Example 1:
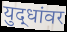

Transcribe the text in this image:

युद्धांवर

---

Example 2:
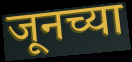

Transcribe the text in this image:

जूनच्या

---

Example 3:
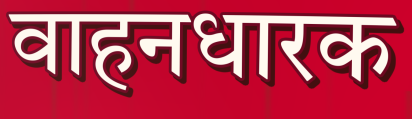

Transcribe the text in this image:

वाहनधारक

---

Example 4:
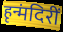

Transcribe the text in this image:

हृन्मंदिरीं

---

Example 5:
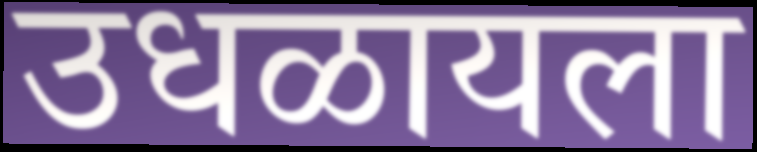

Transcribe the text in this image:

उधळायला